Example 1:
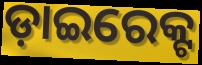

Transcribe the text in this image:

ଡ଼ାଇରେକ୍ଟ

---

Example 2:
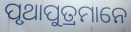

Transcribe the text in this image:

ପୃଥାପୁତ୍ରମାନେ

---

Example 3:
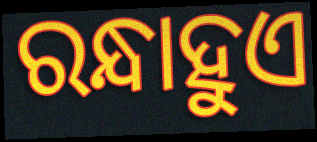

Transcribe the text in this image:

ରନ୍ଧାହୁଏ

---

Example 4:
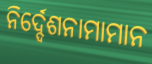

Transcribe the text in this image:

ନିର୍ଦ୍ଦେଶନାମାମାନ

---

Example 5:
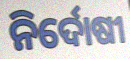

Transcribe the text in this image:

ନିର୍ଦୋଷୀ